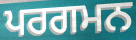
ਪਰਗਮਨ